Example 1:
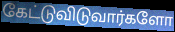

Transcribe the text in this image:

கேட்டுவிடுவார்களோ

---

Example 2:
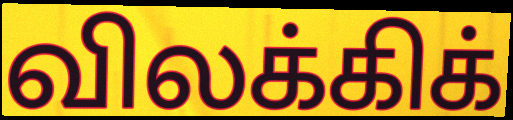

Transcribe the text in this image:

விலக்கிக்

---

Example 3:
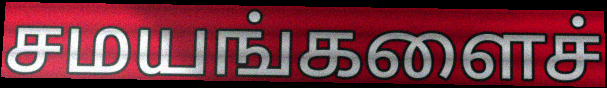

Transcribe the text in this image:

சமயங்களைச்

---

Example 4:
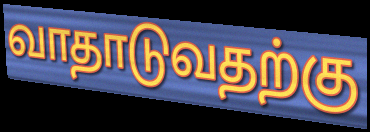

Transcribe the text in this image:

வாதாடுவதற்கு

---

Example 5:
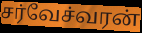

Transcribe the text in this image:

சர்வேச்வரன்